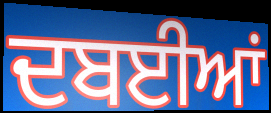
ਦਬਈਆਂ